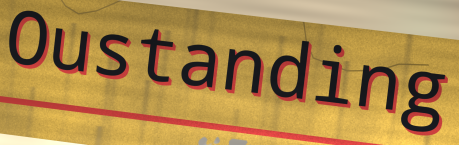
Oustanding